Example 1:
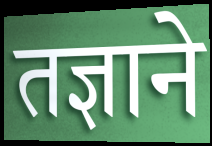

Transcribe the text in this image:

तज्ञाने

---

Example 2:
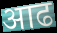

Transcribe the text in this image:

आढ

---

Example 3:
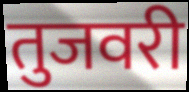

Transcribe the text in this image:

तुजवरी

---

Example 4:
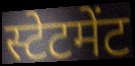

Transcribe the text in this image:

स्टेटमेंट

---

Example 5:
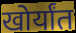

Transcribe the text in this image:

खोर्यांत